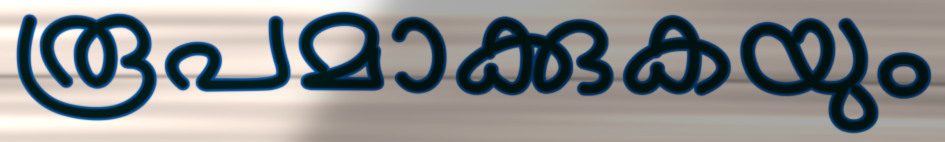
രൂപമാക്കുകയും